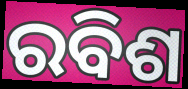
ରବିଶ